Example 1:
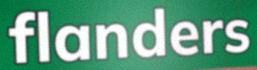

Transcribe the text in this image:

flanders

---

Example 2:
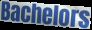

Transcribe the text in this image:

Bachelors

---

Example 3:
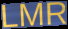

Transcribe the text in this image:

LMR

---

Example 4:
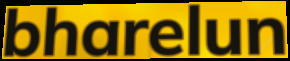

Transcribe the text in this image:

bharelun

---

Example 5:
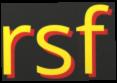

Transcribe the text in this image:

rsf